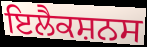
ਇਲੈਕਸ਼ਨਸ